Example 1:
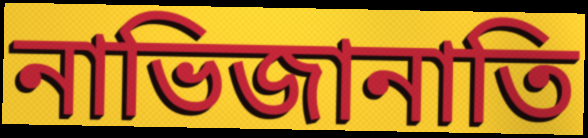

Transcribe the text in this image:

নাভিজানাতি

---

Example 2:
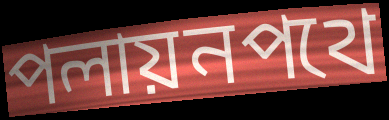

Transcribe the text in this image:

পলায়নপথে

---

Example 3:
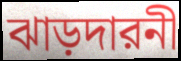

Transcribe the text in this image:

ঝাড়দারনী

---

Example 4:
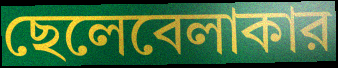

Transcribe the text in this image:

ছেলেবেলাকার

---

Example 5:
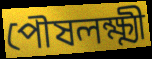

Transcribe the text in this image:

পৌষলক্ষ্মী